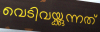
വെടിവയ്ക്കുന്നത്